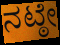
ನಟ್ಠೇ